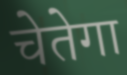
चेतेगा